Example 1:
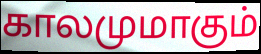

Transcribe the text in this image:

காலமுமாகும்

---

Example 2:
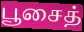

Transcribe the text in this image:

பூசைத்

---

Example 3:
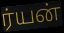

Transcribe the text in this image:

ர்யன்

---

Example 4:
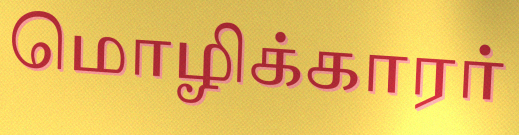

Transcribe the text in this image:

மொழிக்காரர்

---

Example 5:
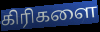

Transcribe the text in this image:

கிரிகளை